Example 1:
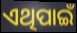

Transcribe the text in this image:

ଏଥିପାଇଁ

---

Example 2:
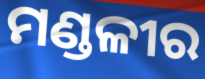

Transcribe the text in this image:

ମଣ୍ଡଳୀର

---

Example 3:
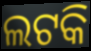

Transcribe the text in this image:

ଲଟକି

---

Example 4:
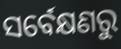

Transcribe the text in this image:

ସର୍ବେକ୍ଷଣରୁ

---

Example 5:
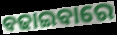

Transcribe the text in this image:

ବଢାଇବାରେ